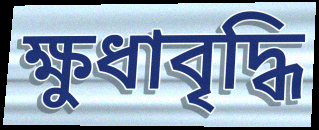
ক্ষুধাবৃদ্ধি